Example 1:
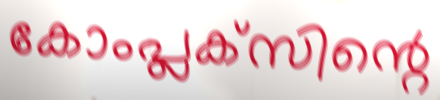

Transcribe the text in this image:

കോംപ്ലക്‌സിന്റെ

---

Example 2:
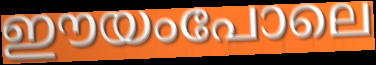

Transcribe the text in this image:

ഈയംപോലെ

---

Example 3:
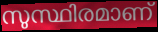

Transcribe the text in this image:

സുസ്ഥിരമാണ്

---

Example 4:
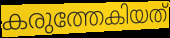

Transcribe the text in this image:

കരുത്തേകിയത്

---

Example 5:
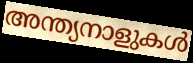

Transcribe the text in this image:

അന്ത്യനാളുകൾ